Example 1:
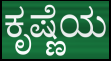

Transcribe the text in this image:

ಕೃಷ್ಣೆಯ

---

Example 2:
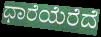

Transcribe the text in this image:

ಧಾರೆಯೆರೆದೆ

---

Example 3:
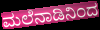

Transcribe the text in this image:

ಮಲೆನಾಡಿನಿಂದ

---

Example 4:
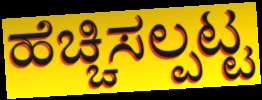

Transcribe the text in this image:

ಹೆಚ್ಚಿಸಲ್ಪಟ್ಟ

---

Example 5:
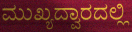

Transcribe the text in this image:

ಮುಖ್ಯದ್ವಾರದಲ್ಲಿ